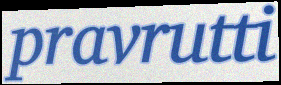
pravrutti